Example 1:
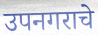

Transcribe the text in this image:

उपनगराचे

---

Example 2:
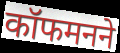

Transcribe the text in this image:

कॉफमनने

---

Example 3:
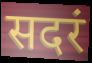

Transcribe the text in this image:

सदरं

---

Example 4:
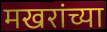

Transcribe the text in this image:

मखरांच्या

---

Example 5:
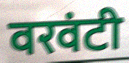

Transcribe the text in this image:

वरवंटी